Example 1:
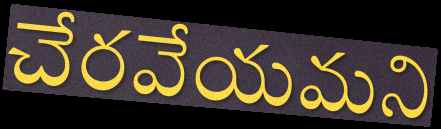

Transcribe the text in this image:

చేరవేయమని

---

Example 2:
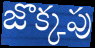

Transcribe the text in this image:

జొక్కపు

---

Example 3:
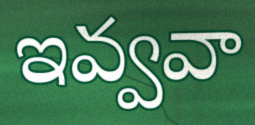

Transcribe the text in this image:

ఇవ్వవా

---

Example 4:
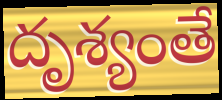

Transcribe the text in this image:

దృశ్యంతే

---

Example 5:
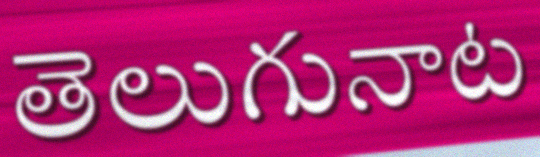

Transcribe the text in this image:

తెలుగునాట